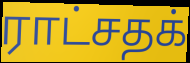
ராட்சதக்